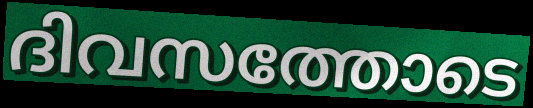
ദിവസത്തോടെ